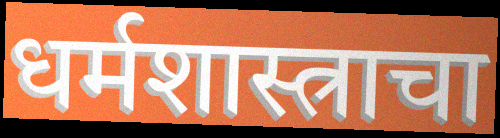
धर्मशास्त्राचा